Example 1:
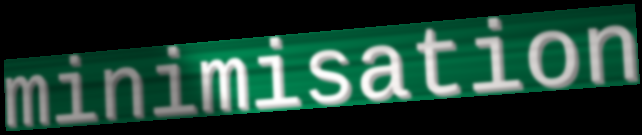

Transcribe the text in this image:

minimisation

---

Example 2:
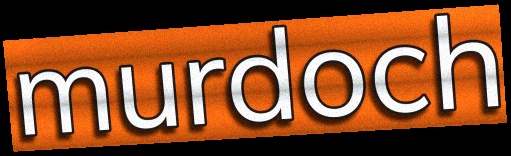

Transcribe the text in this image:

murdoch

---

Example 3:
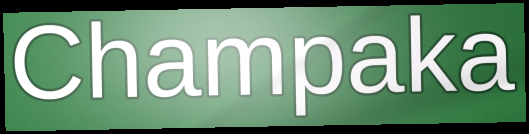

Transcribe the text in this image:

Champaka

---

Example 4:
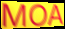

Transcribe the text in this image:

MOA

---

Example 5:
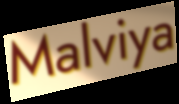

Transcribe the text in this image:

Malviya